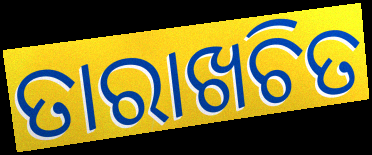
ତାରାଖଚିତ